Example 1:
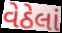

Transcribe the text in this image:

વેઠેલાં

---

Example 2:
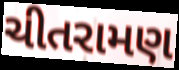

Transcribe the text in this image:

ચીતરામણ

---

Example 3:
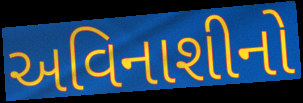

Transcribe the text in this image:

અવિનાશીનો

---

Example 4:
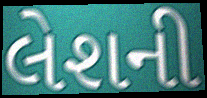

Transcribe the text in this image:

લેશની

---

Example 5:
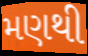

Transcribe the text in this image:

મણથી